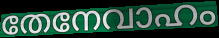
തേനേവാഹം